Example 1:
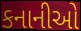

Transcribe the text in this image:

કનાનીઓ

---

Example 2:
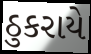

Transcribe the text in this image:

ઠુકરાયે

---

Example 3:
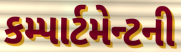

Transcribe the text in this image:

કમ્પાર્ટમેન્ટની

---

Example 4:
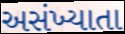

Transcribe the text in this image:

અસંખ્યાતા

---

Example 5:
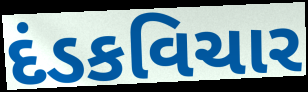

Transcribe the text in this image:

દંડકવિચાર